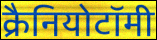
क्रैनियोटॉमी